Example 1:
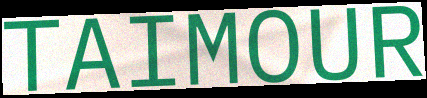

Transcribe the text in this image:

TAIMOUR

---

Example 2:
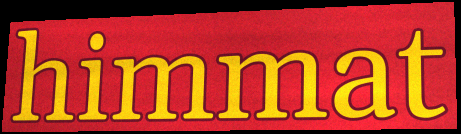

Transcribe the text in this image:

himmat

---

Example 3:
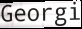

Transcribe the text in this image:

Georgi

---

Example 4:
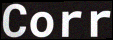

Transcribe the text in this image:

Corr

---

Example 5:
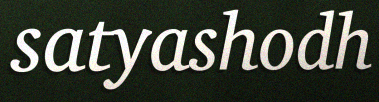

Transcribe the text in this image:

satyashodh